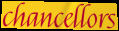
chancellors